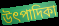
উৎপাদিকা